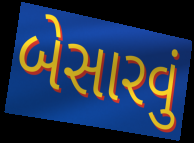
બેસારવું